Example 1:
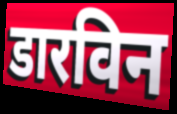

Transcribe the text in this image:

डारविन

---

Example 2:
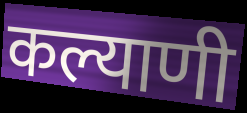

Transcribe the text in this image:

कल्याणी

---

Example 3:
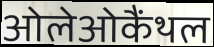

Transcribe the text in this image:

ओलेओकैंथल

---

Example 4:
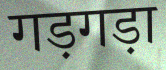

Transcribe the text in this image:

गड़गड़ा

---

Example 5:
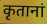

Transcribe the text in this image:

कृतानां